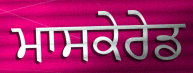
ਮਾਸਕੇਰੇਡ